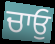
ਚਾਓੁ